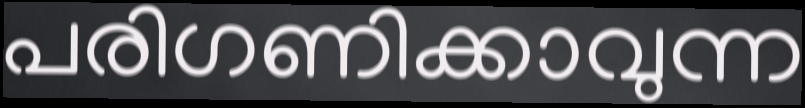
പരിഗണിക്കാവുന്ന